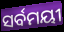
ସର୍ବମୟୀ